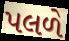
પલળે